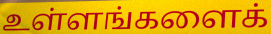
உள்ளங்களைக்